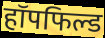
हॉपफिल्ड